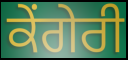
ਕੇਂਗੇਰੀ